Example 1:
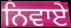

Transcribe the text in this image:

ਨਿਵਾਏ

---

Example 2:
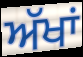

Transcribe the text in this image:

ਅੱਖਾਂ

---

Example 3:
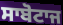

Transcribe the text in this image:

ਸਾਬੋਟਾਜ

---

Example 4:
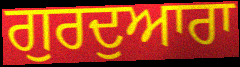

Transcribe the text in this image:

ਗੁਰਦੁਆਰਾ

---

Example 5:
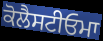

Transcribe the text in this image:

ਕੋਲੈਸਟੀਓਮਾ